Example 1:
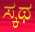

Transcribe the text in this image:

ಸ್ಕಥ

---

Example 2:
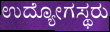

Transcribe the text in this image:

ಉದ್ಯೋಗಸ್ಥರು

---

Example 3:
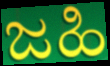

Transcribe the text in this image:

ಜಹಿ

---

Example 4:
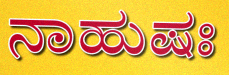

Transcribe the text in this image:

ನಾಹುಷಃ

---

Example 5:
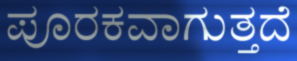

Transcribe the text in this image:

ಪೂರಕವಾಗುತ್ತದೆ